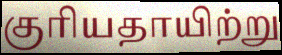
குரியதாயிற்று